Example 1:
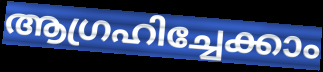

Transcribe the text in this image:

ആഗ്രഹിച്ചേക്കാം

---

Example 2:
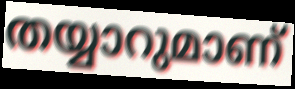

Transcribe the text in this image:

തയ്യാറുമാണ്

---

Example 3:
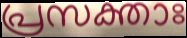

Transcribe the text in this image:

പ്രസക്താഃ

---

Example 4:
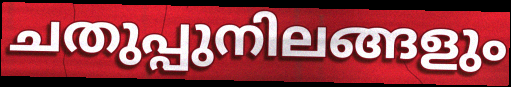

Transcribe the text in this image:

ചതുപ്പുനിലങ്ങളും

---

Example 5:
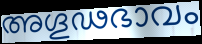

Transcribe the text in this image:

അഗൂഢഭാവം